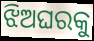
ଝିଅଘରକୁ